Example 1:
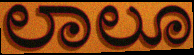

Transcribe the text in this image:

ಲಾಲೂ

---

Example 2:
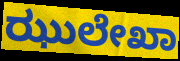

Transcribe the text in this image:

ಝುಲೇಖಾ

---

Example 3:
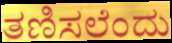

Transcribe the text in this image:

ತಣಿಸಲೆಂದು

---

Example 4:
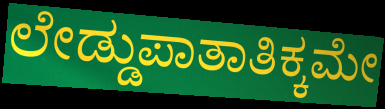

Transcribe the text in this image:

ಲೇಡ್ಡುಪಾತಾತಿಕ್ಕಮೇ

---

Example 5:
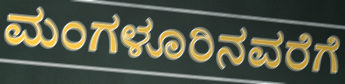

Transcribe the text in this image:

ಮಂಗಳೂರಿನವರೆಗೆ